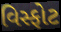
વિસ્ફોટ